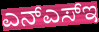
ಎನ್ಎಸ್ಇ